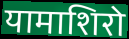
यामाशिरो